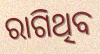
ରାଗିଥିବ